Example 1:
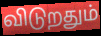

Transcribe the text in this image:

விடுறதும்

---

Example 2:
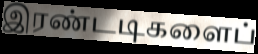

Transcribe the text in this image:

இரண்டடிகளைப்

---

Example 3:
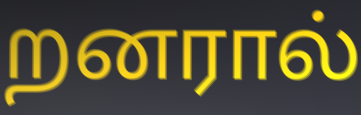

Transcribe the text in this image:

றனரால்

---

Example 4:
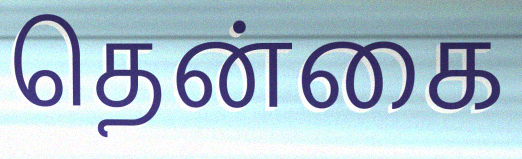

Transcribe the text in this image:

தென்கை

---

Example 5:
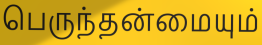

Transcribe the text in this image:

பெருந்தன்மையும்